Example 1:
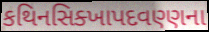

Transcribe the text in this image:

કથિનસિક્ખાપદવણ્ણના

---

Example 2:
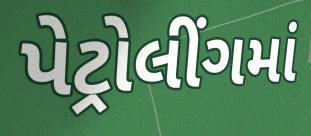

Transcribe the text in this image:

પેટ્રોલીંગમાં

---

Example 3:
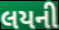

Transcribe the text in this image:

લયની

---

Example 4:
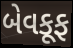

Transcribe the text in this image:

બેવકૂફ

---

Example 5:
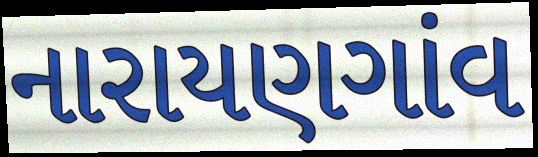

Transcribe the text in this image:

નારાયણગાંવ